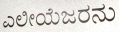
ಎಲೀಯೆಜರನು